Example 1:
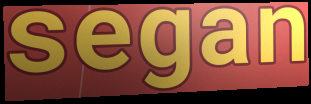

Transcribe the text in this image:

segan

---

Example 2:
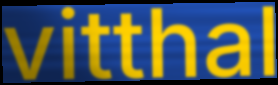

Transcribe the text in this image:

vitthal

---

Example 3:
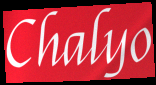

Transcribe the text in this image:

Chalyo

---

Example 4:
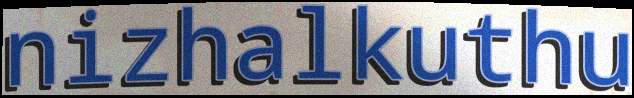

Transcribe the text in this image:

nizhalkuthu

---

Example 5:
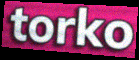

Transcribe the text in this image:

torko